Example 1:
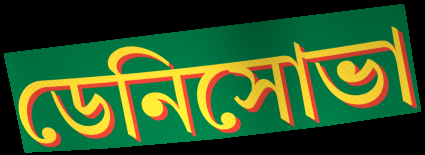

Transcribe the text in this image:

ডেনিসোভা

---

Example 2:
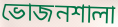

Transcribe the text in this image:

ভোজনশালা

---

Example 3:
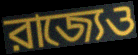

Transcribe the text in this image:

রাজ্যেও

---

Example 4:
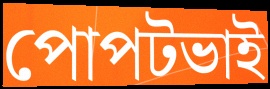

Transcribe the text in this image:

পোপটভাই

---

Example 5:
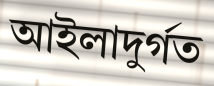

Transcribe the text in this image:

আইলাদুর্গত